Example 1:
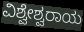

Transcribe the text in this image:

ವಿಶ್ವೇಶ್ವರಾಯ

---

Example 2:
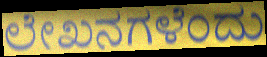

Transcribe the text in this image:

ಲೇಖನಗಳೆಂದು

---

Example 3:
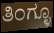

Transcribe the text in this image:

ತಿಂಗ್ಳೂ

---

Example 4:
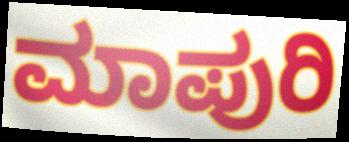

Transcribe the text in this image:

ಮಾಪುರಿ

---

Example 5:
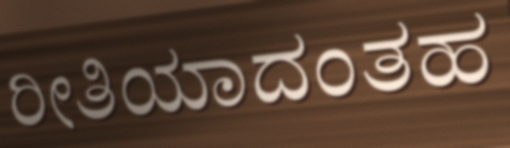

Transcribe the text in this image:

ರೀತಿಯಾದಂತಹ